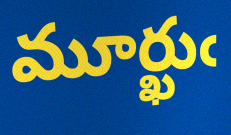
మూర్ఖుఁ